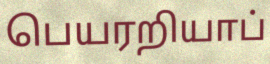
பெயரறியாப்